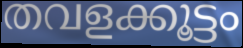
തവളക്കൂട്ടം